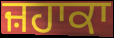
ਜ਼ਹਾਕਾ